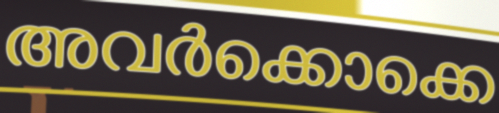
അവർക്കൊക്കെ